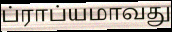
ப்ராப்யமாவது